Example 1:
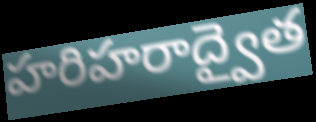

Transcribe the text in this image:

హరిహరాద్వైత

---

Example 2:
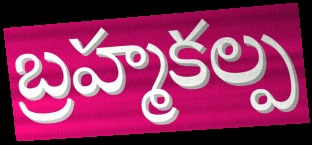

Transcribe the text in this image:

బ్రహ్మకల్ప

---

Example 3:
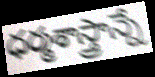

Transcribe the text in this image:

ధర్మశాస్త్రాన్నే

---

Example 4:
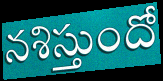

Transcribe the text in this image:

నశిస్తుందో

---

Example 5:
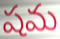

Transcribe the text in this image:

షమ